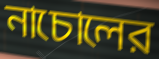
নাচোলের